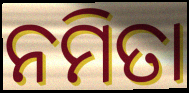
ନମିତା